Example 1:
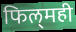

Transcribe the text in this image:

फिल्मही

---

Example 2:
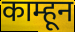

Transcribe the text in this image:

काम्हून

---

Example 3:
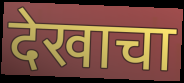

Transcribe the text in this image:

देखाचा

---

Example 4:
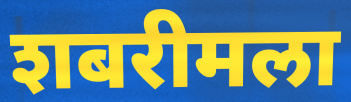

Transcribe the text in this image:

शबरीमला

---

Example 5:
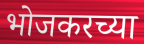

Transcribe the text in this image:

भोजकरच्या